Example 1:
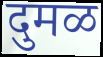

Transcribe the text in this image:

दुमळ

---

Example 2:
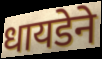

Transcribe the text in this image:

धायडेने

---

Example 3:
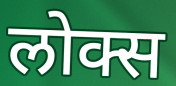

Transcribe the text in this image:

लोक्स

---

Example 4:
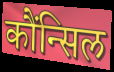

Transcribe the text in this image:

कौंन्सिल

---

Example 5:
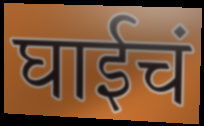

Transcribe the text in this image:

घाईचं